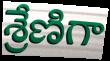
శ్రేణిగా